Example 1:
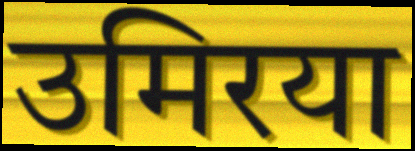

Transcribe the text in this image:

उमिरया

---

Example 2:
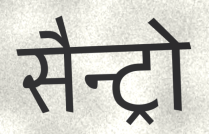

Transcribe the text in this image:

सैन्ट्रो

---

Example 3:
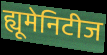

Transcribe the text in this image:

ह्यूमेनिटीज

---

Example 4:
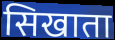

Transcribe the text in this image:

सिखाता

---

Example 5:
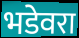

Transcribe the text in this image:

भडेवरा